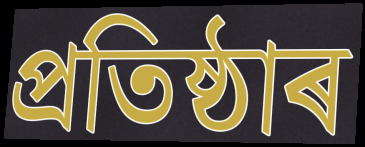
প্ৰতিষ্ঠাৰ